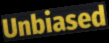
Unbiased